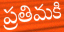
ప్రతిమకి